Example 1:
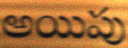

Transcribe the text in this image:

అయిపు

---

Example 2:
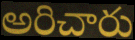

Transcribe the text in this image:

అరిచారు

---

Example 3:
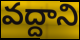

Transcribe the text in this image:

వద్దాని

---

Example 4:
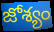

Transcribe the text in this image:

జోశ్యం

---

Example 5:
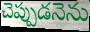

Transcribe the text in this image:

చెప్పుడనెను